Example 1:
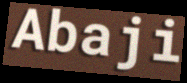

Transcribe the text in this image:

Abaji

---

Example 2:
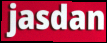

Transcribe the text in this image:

jasdan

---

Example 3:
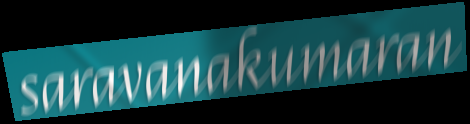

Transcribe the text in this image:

saravanakumaran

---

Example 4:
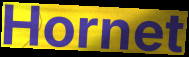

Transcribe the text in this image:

Hornet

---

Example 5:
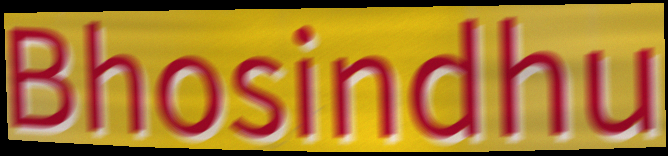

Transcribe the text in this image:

Bhosindhu